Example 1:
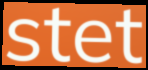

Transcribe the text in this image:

stet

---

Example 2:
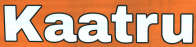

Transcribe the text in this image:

Kaatru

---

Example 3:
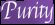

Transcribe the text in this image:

Purity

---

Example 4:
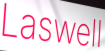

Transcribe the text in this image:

Laswell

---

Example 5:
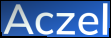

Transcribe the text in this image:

Aczel